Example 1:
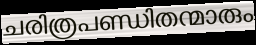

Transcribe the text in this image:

ചരിത്രപണ്ഡിതന്മാരും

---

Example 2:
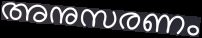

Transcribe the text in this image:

അനുസരണം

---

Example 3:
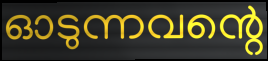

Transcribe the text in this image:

ഓടുന്നവന്റെ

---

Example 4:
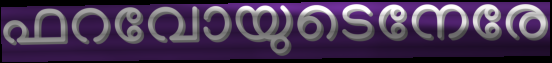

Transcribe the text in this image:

ഫറവോയുടെനേരേ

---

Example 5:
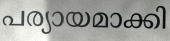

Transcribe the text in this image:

പര്യായമാക്കി